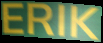
ERIK